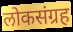
लोकसंग्रह